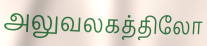
அலுவலகத்திலோ